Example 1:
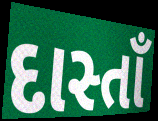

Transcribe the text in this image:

દાસ્તાઁ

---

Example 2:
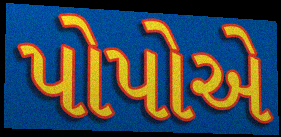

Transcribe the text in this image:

પોપોએ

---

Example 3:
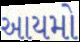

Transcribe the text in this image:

આયમો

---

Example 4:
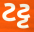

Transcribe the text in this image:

ટટ્ટ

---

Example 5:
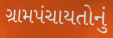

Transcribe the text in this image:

ગ્રામપંચાયતોનું